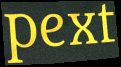
pext